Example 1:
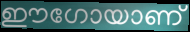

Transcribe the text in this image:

ഈഗോയാണ്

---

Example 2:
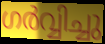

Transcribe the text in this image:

ഗർവ്വിച്ചു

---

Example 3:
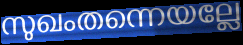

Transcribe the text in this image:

സുഖംതന്നെയല്ലേ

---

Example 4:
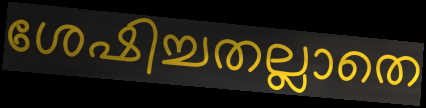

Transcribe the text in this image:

ശേഷിച്ചതല്ലാതെ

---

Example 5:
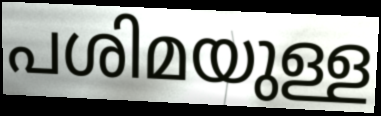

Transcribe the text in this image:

പശിമയുള്ള